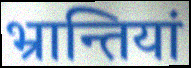
भ्रान्तियां